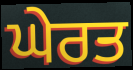
ਘੇਰਤ